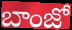
బాంజో